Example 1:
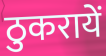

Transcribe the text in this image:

ठुकरायें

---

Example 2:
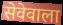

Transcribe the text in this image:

सेवेवाला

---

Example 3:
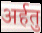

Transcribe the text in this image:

अर्हतु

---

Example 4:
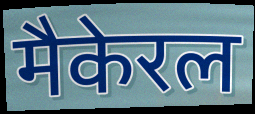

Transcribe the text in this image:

मैकेरल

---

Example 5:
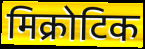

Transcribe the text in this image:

मिक्रोटिक